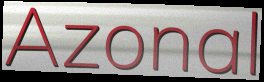
Azonal